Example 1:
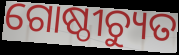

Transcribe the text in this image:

ଗୋଷ୍ଠୀଚ୍ୟୁତ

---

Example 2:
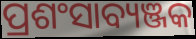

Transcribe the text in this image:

ପ୍ରଶଂସାବ୍ୟଞ୍ଜକ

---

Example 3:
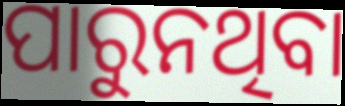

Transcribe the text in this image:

ପାରୁନଥିବା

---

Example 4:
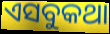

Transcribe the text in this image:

ଏସବୁକଥା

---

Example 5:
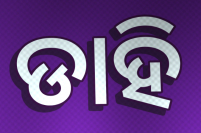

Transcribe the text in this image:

ଡାହି